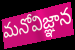
మనోవిజ్ఞాన